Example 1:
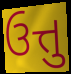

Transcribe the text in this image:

ઉત્તુ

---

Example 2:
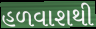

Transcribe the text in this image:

હળવાશથી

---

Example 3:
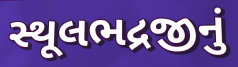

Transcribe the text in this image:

સ્થૂલભદ્રજીનું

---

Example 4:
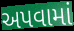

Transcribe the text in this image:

અપવામાં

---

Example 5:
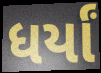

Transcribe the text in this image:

ધર્યાં